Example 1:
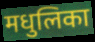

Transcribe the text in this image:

मधुलिका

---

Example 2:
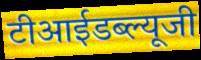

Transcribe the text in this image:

टीआईडब्ल्यूजी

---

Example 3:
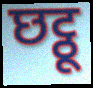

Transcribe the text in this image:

छट्ठू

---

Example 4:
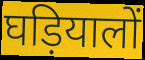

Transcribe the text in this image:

घड़ियालों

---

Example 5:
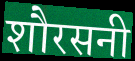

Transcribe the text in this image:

शौरसनी